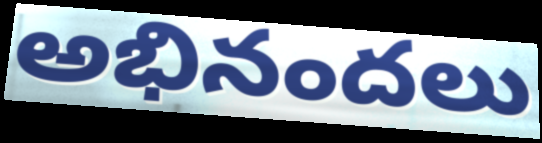
అభినందలు